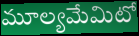
మూల్యమేమిటో